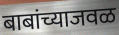
बाबांच्याजवळ